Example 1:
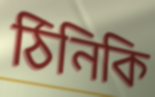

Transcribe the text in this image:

ঠিনিকি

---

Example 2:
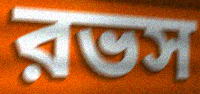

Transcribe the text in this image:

রভস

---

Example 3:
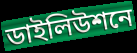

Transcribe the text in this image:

ডাইলিউশনে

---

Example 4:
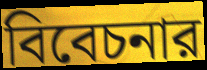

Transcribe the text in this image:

বিবেচনার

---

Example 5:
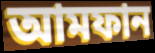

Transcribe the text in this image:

আমফান